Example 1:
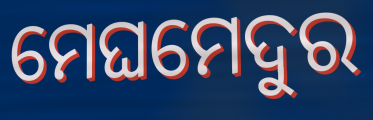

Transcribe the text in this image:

ମେଘମେଦୁର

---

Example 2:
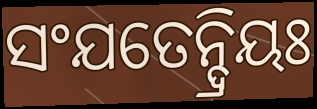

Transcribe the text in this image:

ସଂଯତେନ୍ଦ୍ରିୟଃ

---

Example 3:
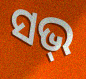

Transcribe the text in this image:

ସଭ୍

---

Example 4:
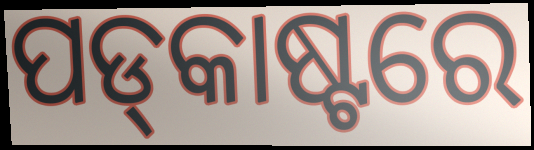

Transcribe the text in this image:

ପଡ୍‌କାଷ୍ଟରେ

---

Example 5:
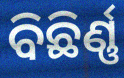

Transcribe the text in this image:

ବିଛିର୍ଣ୍ଣ